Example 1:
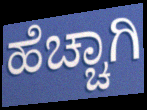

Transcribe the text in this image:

ಹೆಚ್ಚಾಗಿ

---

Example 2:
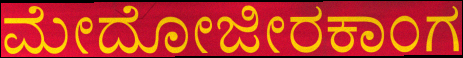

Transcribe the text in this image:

ಮೇದೋಜೀರಕಾಂಗ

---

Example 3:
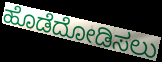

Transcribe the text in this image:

ಹೊಡೆದೋಡಿಸಲು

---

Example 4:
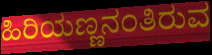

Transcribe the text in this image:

ಹಿರಿಯಣ್ಣನಂತಿರುವ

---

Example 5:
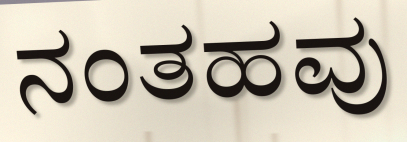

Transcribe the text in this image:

ನಂತಹವು